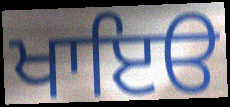
ਖਾਇੳ